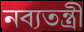
নব্যতন্ত্রী